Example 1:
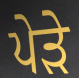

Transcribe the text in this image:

ਪੇੜੇ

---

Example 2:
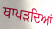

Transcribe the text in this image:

ਥਾਪੜਦਿਆਂ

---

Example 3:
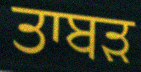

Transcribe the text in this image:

ਤਾਬੜ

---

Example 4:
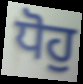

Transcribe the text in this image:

ਧੋਹੁ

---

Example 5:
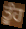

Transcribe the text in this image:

ਤੂੰਹ